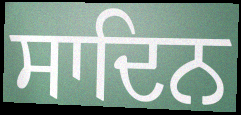
ਸਾਦਿਨ